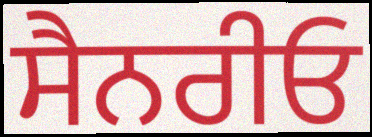
ਸੈਨਰੀਓ